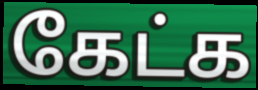
கேட்க